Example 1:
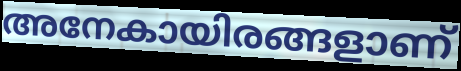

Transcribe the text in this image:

അനേകായിരങ്ങളാണ്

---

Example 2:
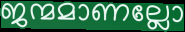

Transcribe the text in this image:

ജന്മമാണല്ലോ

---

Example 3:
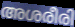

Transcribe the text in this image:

അശരീരി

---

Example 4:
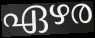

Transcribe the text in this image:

ഏഴര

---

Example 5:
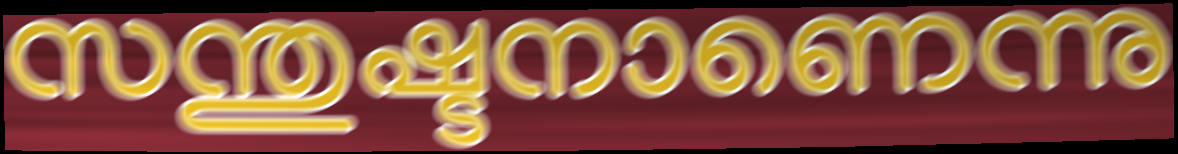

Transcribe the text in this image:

സന്തുഷ്ടനാണെന്നു